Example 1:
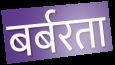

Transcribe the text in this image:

बर्बरता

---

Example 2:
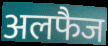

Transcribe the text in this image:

अलफैज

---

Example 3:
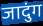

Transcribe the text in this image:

जादुंग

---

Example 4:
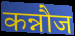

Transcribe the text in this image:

कन्नौज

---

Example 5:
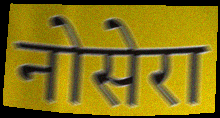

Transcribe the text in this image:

नोसेरा